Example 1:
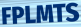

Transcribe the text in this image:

FPLMTS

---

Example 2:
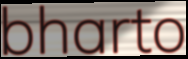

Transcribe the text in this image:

bharto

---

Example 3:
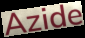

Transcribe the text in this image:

Azide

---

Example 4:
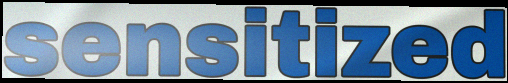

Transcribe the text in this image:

sensitized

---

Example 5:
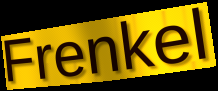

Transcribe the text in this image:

Frenkel